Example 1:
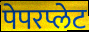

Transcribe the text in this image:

पेपरप्लेट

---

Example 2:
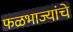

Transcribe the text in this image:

फळभाज्यांचे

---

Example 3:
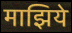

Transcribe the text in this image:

माझिये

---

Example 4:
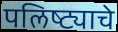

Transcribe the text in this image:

पलिष्ट्याचे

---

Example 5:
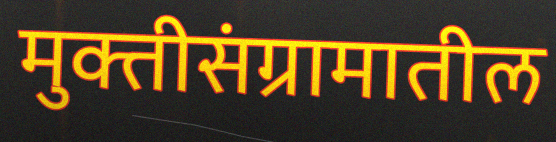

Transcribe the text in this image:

मुक्तीसंग्रामातील